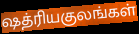
ஷத்ரியகுலங்கள்